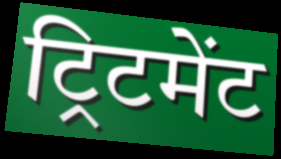
ट्रिटमेंट